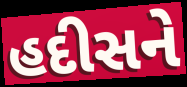
હદીસને